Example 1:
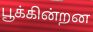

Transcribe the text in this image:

பூக்கின்றன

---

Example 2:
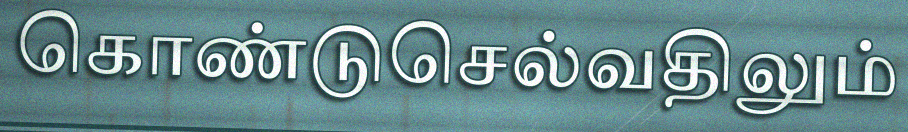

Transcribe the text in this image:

கொண்டுசெல்வதிலும்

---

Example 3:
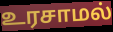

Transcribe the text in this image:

உரசாமல்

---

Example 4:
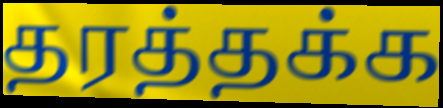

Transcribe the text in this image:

தரத்தக்க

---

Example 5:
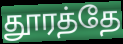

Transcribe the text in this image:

தூரத்தே